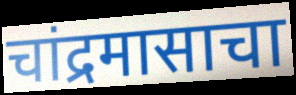
चांद्रमासाचा